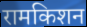
रामकिशन